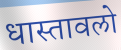
धास्तावलो